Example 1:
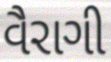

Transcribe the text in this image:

વૈરાગી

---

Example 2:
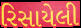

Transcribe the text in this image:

રિસાયેલી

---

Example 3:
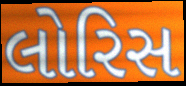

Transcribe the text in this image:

લોરિસ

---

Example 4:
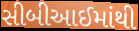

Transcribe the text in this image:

સીબીઆઈમાંથી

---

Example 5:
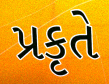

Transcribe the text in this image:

પ્રકૃતે